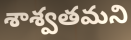
శాశ్వతమని